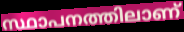
സ്ഥാപനത്തിലാണ്